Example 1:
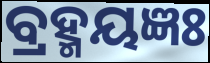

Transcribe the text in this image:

ବ୍ରହ୍ମୟଜ୍ଞଃ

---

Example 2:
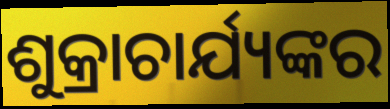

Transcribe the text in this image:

ଶୁକ୍ରାଚାର୍ଯ୍ୟଙ୍କର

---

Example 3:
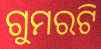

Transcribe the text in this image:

ଗୁମରଟି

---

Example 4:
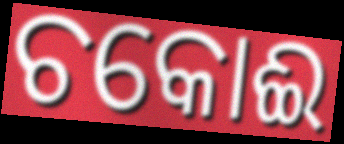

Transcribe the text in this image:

ଚକୋଈ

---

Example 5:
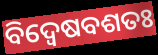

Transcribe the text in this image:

ବିଦ୍ୱେଷବଶତଃ